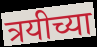
त्रयीच्या